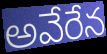
అవేరేన